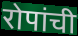
रोपांची